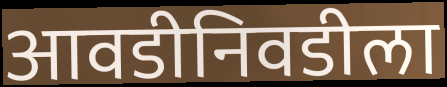
आवडीनिवडीला